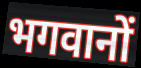
भगवानों